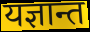
यज्ञान्त